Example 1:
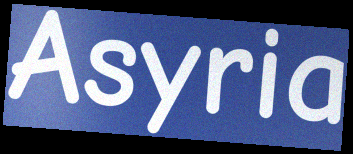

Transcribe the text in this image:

Asyria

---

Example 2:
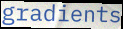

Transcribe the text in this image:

gradients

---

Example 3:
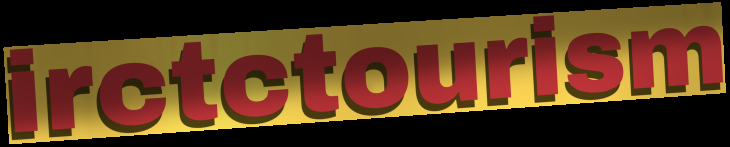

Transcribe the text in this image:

irctctourism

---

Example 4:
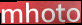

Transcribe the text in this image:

mhoto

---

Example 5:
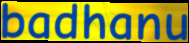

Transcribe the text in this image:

badhanu